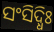
ସଂସିଦ୍ଧିଃ